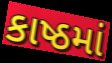
કાષ્ઠમાં